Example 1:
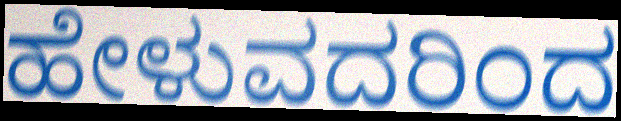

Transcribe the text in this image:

ಹೇಳುವದರಿಂದ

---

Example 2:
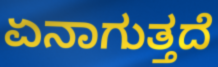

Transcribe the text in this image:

ಏನಾಗುತ್ತದೆ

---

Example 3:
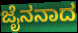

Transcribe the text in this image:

ಜೈನನಾದ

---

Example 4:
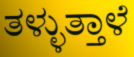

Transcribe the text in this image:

ತಳ್ಳುತ್ತಾಳೆ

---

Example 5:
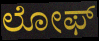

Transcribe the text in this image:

ಲೋಫ್